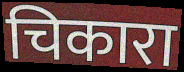
चिकारा